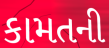
કામતની